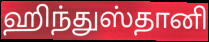
ஹிந்துஸ்தானி